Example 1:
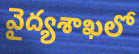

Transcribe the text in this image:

వైద్యశాఖలో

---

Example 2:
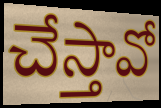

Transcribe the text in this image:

చేస్తావో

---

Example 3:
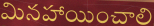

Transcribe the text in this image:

మినహాయించాలి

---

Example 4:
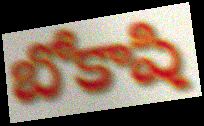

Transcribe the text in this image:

బోకాషి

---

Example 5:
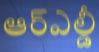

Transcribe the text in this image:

ఆర్ఎల్డీ